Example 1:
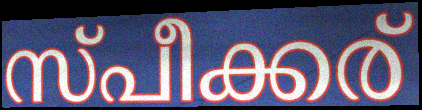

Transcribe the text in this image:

സ്പീക്കര്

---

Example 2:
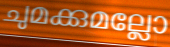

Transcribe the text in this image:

ചുമക്കുമല്ലോ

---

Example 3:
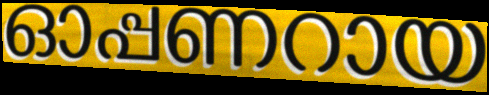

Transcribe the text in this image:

ഓപ്പണറായ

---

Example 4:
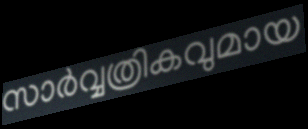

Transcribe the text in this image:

സാർവ്വത്രികവുമായ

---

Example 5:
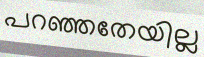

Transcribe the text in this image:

പറഞ്ഞതേയില്ല